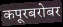
कपूरबरोबर